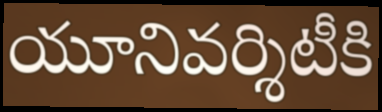
యూనివర్శిటీకి